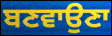
ਬਣਵਾਉਣਾ